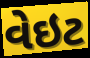
વેઇટ